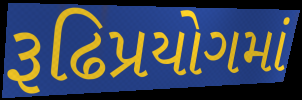
રૂઢિપ્રયોગમાં